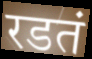
रडतं